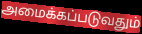
அமைக்கப்படுவதும்